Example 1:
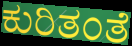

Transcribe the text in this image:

ಕುರಿತಂತೆ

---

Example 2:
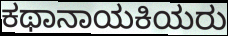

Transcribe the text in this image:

ಕಥಾನಾಯಕಿಯರು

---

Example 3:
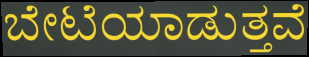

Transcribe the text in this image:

ಬೇಟೆಯಾಡುತ್ತವೆ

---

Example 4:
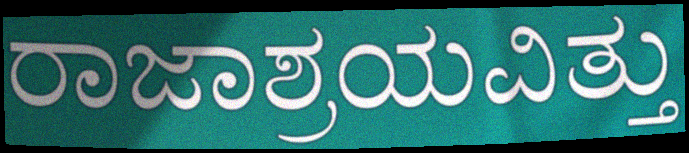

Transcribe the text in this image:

ರಾಜಾಶ್ರಯವಿತ್ತು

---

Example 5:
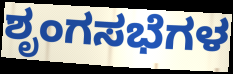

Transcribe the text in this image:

ಶೃಂಗಸಭೆಗಳ